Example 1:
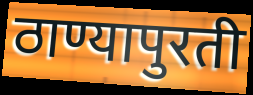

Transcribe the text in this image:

ठाण्यापुरती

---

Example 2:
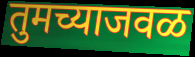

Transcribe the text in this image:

तुमच्याजवळ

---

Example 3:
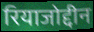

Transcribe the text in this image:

रियाजोद्दीन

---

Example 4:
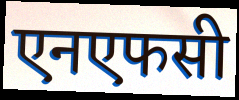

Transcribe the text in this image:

एनएफसी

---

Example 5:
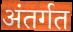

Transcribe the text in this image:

अंतर्गत